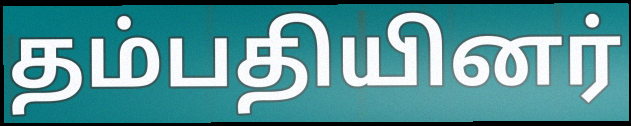
தம்பதியினர்